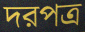
দরপত্র